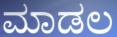
ಮಾಡಲ